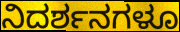
ನಿದರ್ಶನಗಳೂ